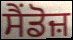
ਸੈਂਡੋਜ਼